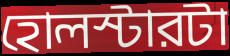
হোলস্টারটা